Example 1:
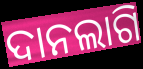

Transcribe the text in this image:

ଦାନଲାଗି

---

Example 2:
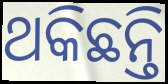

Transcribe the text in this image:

ଥକିଛନ୍ତି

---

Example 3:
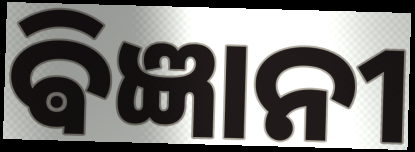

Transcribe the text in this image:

ଵିଜ୍ଞାନୀ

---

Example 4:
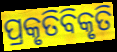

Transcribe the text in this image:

ପ୍ରକୃତିବିକୃତି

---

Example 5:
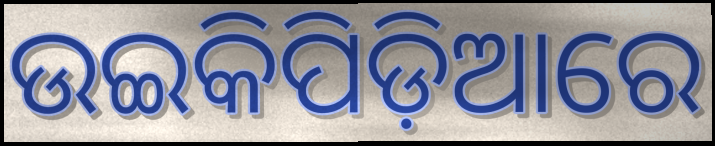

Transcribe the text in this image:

ଉଇକିପିଡ଼ିଆରେ